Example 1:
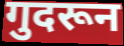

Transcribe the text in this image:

गुदरून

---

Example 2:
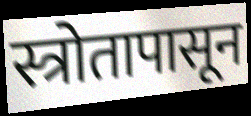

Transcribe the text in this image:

स्त्रोतापासून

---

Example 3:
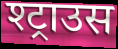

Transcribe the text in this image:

श्ट्राउस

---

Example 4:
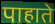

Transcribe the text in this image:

पाहाते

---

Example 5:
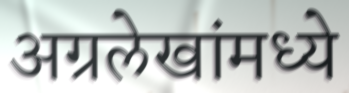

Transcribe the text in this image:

अग्रलेखांमध्ये